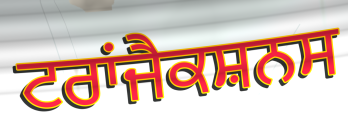
ਟਰਾਂਜੈਕਸ਼ਨਸ